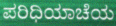
ಪರಿಧಿಯಾಚೆಯ